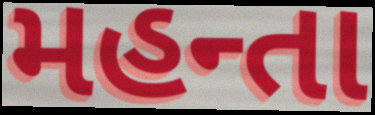
મહન્તા